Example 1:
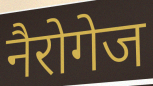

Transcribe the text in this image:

नैरोगेज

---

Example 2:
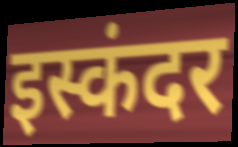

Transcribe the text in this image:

इस्कंदर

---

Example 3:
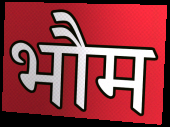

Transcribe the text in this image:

भौम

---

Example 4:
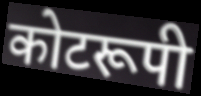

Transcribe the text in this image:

कोटरूपी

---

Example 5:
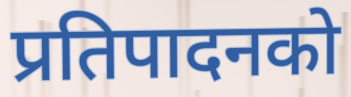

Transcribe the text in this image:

प्रतिपादनको